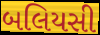
બલિયસી